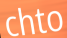
chto